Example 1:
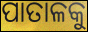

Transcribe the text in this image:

ପାତାଳକୁ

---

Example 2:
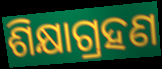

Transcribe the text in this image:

ଶିକ୍ଷାଗ୍ରହଣ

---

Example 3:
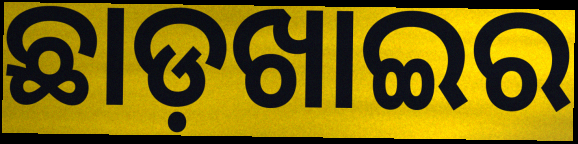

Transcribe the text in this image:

ଛାଡ଼ଖାଇର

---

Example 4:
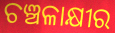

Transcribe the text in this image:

ଚଞ୍ଚଳାକ୍ଷୀର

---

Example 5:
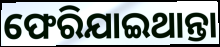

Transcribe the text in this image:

ଫେରିଯାଇଥାନ୍ତା